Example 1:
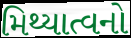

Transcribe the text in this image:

મિથ્યાત્વનો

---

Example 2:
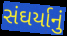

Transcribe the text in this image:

સંઘર્યાનું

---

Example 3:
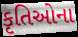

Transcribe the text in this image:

કૃતિઓના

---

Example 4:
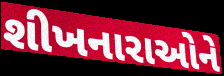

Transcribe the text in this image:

શીખનારાઓને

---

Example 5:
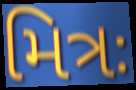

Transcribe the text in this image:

મિત્રઃ